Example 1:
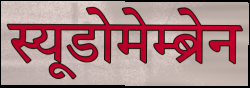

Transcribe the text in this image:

स्यूडोमेम्ब्रेन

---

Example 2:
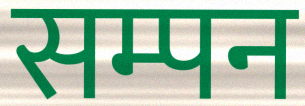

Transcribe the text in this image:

सम्पन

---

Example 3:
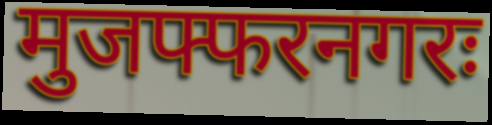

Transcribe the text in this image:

मुजफ्फरनगरः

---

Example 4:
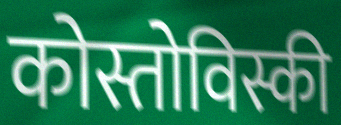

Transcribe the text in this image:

कोस्तोविस्की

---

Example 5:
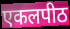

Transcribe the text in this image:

एकलपीठ